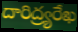
దారిద్ర్యరేఖ